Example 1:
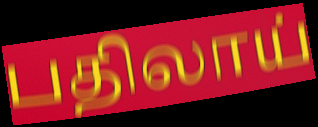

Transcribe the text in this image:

பதிலாய்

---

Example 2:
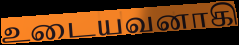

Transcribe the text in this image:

உடையவனாகி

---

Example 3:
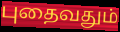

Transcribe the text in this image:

புதைவதும்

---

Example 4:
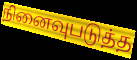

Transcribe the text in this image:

நினைவுபடுத்த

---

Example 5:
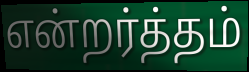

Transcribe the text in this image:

என்றர்த்தம்